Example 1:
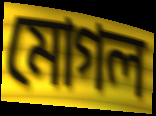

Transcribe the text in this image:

মোগল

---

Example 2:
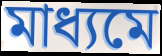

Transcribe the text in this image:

মাধ্যমে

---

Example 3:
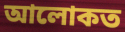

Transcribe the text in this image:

আলোকত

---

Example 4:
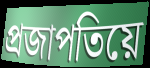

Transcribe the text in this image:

প্ৰজাপতিয়ে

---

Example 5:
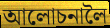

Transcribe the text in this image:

আলোচনালৈ